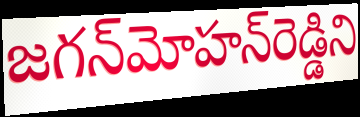
జగన్‌మోహన్‌రెడ్డిని